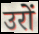
उरों